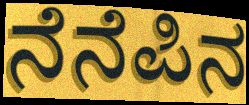
ನೆನೆಪಿನ